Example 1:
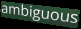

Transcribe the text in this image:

ambiguous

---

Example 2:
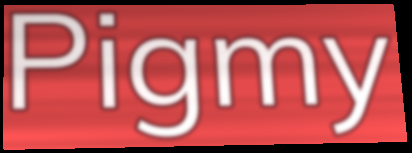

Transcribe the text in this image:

Pigmy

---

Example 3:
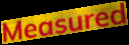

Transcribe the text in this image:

Measured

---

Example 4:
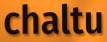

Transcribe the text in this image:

chaltu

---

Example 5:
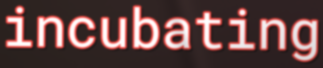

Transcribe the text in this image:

incubating